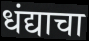
धंद्याचा